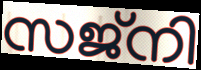
സജ്നി